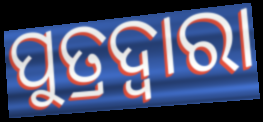
ପୁତ୍ରଦ୍ୱାରା